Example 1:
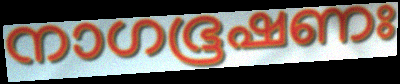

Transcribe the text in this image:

നാഗഭൂഷണഃ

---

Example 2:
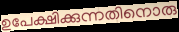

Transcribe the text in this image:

ഉപേക്ഷിക്കുന്നതിനൊരു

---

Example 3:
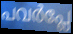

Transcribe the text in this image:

പവർപ്ലേ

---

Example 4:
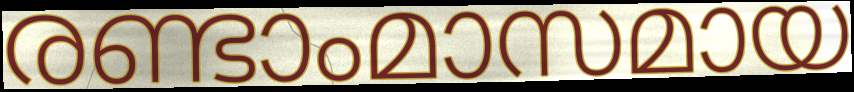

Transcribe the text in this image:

രണ്ടാംമാസമായ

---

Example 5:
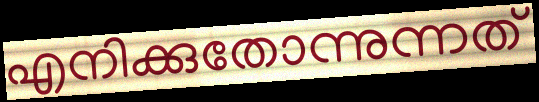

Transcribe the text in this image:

എനിക്കുതോന്നുന്നത്